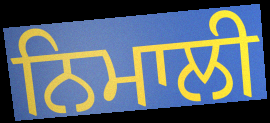
ਨਿਮਾਲੀ